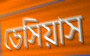
ডেসিয়াস